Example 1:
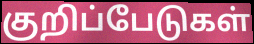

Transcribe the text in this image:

குறிப்பேடுகள்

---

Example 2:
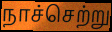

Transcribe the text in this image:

நாச்செற்று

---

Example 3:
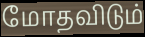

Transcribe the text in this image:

மோதவிடும்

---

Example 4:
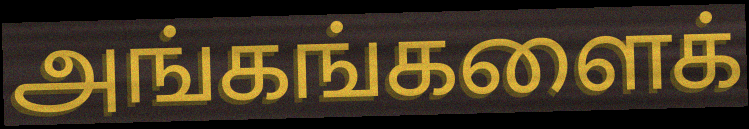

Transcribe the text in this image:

அங்கங்களைக்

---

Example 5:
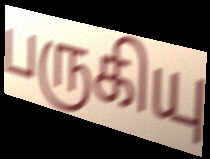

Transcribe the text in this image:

பருகியு